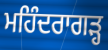
ਮਹਿੰਦਰਾਗੜ੍ਹ